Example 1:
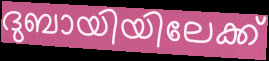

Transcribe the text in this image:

ദുബായിയിലേക്ക്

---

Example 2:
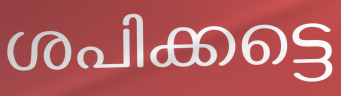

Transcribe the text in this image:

ശപിക്കട്ടെ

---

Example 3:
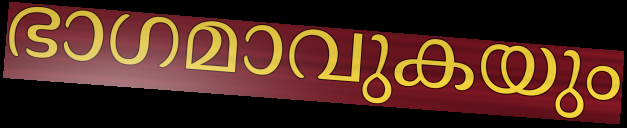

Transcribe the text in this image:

ഭാഗമാവുകയും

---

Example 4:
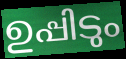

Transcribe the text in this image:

ഉപ്പിടും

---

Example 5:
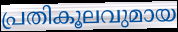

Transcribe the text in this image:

പ്രതികൂലവുമായ